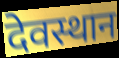
देवस्थान